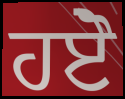
ਹਏੋ